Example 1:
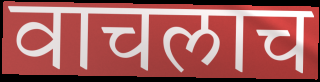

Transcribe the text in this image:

वाचलाच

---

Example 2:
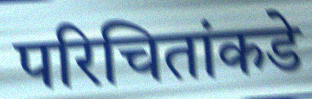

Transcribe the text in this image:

परिचितांकडे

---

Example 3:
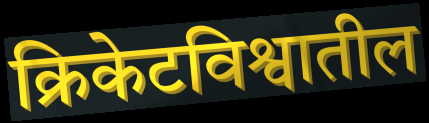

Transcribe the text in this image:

क्रिकेटविश्वातील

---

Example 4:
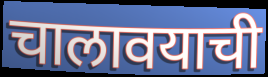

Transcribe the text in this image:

चालावयाची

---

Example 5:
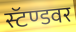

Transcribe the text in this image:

स्टॅण्डवर